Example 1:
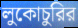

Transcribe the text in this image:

লুকোচুরির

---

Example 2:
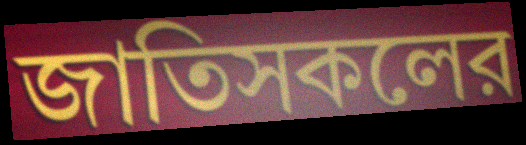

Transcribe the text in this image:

জাতিসকলের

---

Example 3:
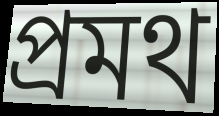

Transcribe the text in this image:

প্রমথ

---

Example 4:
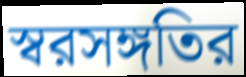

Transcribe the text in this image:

স্বরসঙ্গতির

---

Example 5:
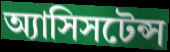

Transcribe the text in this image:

অ্যাসিসটেন্স